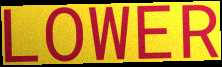
LOWER